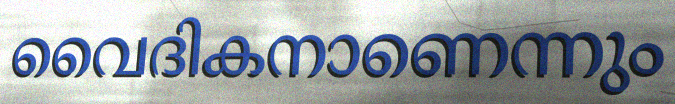
വൈദികനാണെന്നും